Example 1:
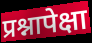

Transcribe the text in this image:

प्रश्नापेक्षा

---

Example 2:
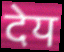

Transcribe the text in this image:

देय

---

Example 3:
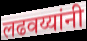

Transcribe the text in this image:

लढवय्यांनी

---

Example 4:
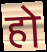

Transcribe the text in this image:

हो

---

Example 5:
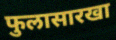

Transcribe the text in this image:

फुलासारखा